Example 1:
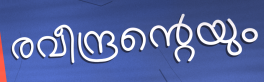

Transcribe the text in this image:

രവീന്ദ്രന്റെയും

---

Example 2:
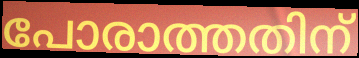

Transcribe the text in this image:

പോരാത്തതിന്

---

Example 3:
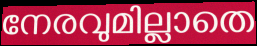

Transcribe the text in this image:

നേരവുമില്ലാതെ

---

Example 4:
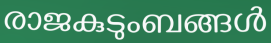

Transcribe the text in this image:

രാജകുടുംബങ്ങൾ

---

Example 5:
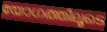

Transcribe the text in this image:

യോഗത്തിലൂടെ